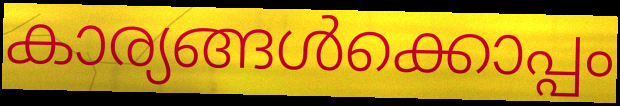
കാര്യങ്ങൾക്കൊപ്പം